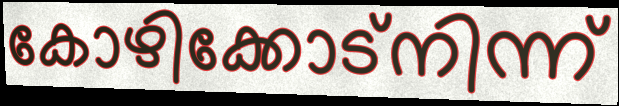
കോഴിക്കോട്നിന്ന്